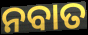
ନବାତ